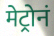
मेट्रोनं